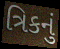
ત્રિકનું